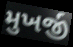
મુખર્જી